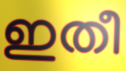
ഇതീ